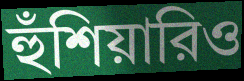
হুঁশিয়ারিও